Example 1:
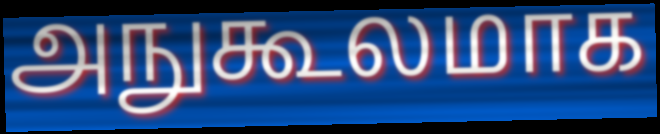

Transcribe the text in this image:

அநுகூலமாக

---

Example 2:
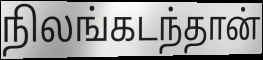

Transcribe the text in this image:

நிலங்கடந்தான்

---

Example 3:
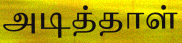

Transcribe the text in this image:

அடித்தாள்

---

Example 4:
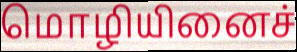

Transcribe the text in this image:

மொழியினைச்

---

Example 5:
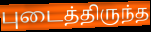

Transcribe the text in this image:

புடைத்திருந்த